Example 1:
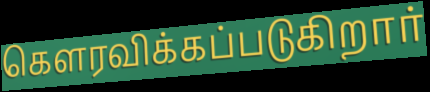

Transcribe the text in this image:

கௌரவிக்கப்படுகிறார்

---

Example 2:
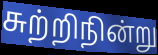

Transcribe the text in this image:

சுற்றிநின்று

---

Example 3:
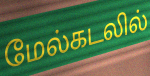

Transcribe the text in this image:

மேல்கடலில்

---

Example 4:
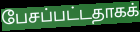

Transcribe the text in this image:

பேசப்பட்டதாகக்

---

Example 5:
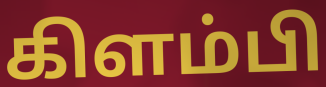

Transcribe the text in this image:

கிளம்பி